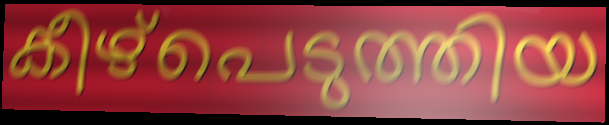
കീഴ്പെടുത്തിയ